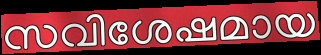
സവിശേഷമായ